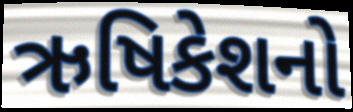
ઋષિકેશનો